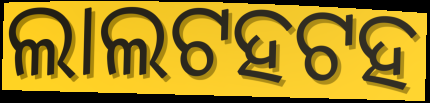
ଲାଲଟହଟହ